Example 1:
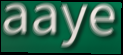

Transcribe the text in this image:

aaye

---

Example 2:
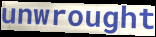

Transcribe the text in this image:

unwrought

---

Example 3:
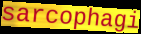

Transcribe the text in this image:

sarcophagi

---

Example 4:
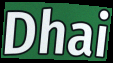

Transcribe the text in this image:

Dhai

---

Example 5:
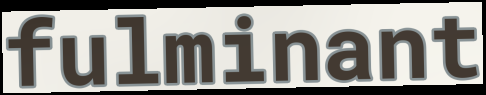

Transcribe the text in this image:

fulminant